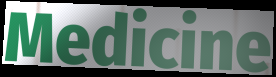
Medicine